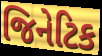
જિનેટિક